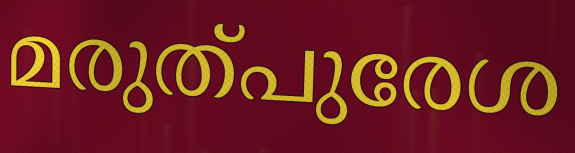
മരുത്പുരേശ